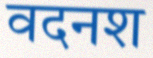
वदनश